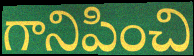
గానిపించి